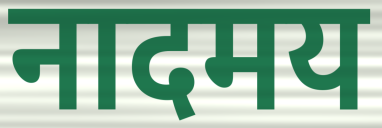
नादमय